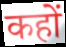
कहों